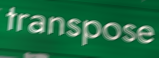
transpose